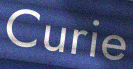
Curie